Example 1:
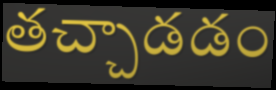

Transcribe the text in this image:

తచ్చాడడం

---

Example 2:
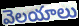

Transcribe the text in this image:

వెలయాలు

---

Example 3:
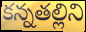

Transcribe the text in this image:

కన్నతల్లిని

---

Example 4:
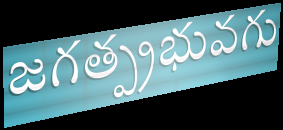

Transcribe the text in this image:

జగత్ప్రభువగు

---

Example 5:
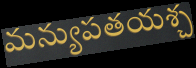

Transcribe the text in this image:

మన్యుపతయశ్చ